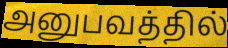
அனுபவத்தில்